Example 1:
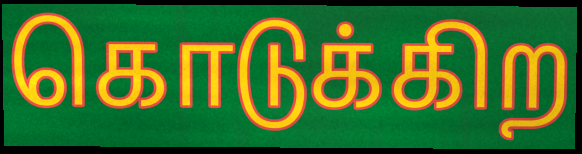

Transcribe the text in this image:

கொடுக்கிற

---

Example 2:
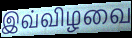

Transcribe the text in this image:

இவ்விழவை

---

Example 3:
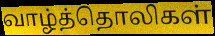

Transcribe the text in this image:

வாழ்த்தொலிகள்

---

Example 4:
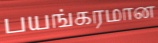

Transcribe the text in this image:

பயங்கரமான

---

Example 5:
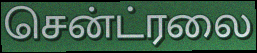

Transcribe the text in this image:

சென்ட்ரலை